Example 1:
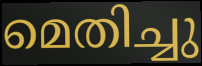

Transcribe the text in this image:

മെതിച്ചു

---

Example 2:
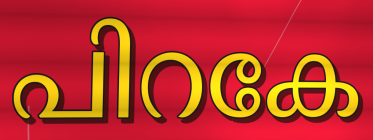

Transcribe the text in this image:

പിറകേ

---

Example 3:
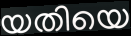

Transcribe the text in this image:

യതിയെ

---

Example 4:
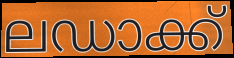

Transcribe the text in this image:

ലഡാക്ക്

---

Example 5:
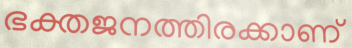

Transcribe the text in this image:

ഭക്തജനത്തിരക്കാണ്